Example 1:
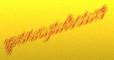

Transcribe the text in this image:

ಜ್ಞಾನಸುಬ್ರಮಣಿಯನ್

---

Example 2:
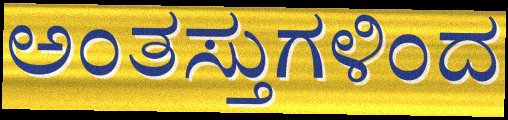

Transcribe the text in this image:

ಅಂತಸ್ತುಗಳಿಂದ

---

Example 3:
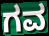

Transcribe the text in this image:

ಗವ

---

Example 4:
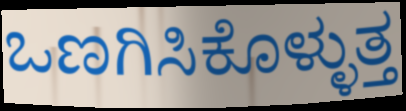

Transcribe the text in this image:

ಒಣಗಿಸಿಕೊಳ್ಳುತ್ತ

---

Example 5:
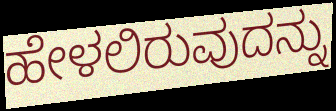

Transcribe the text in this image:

ಹೇಳಲಿರುವುದನ್ನು